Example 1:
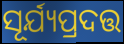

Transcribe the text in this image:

ସୂର୍ଯ୍ୟପ୍ରଦତ୍ତ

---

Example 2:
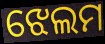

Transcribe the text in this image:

ଝେଲମ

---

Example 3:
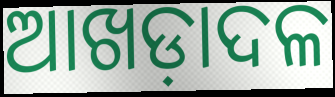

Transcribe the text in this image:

ଆଖଡ଼ାଦଳ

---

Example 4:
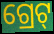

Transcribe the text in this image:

ଗ୍ରେଟ୍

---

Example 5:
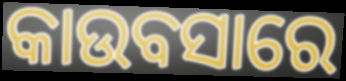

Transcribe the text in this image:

କାଉବସାରେ